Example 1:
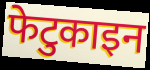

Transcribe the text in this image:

फेटुकाइन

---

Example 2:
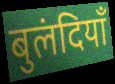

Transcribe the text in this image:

बुलंदियाँ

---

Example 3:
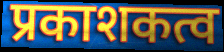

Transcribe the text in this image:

प्रकाशकत्व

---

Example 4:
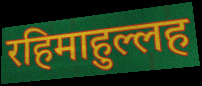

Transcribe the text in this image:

रहिमाहुल्लह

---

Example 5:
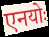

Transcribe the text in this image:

एनयोः